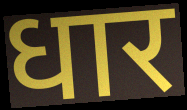
धार